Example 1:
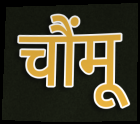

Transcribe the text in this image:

चौंमू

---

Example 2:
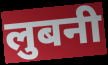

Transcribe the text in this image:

लुबनी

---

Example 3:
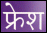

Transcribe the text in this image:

फ्रेश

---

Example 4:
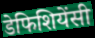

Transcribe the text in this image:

डेफिशियेंसी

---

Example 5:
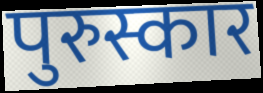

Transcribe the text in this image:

पुरुस्‍कार